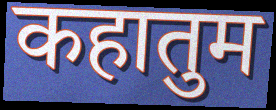
कहातुम